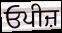
ਓਪੀਜ਼